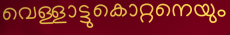
വെള്ളാട്ടുകൊറ്റനെയും